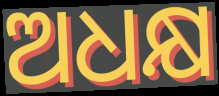
ଅଧକ୍ଷ